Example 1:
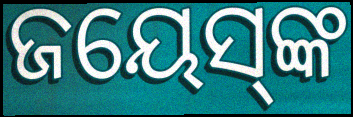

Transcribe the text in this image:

ଜୟେସ୍‌ଙ୍କ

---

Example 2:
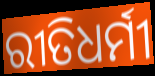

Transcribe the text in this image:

ରୀତିଧର୍ମୀ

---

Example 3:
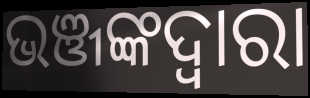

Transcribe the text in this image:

ଭଞ୍ଜଙ୍କଦ୍ୱାରା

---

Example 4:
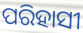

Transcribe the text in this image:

ପରିହାସୀ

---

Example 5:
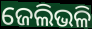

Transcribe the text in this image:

ଜେଲିଭଳି